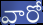
వారో